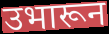
उभारून